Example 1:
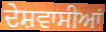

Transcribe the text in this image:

ਦੇਸ਼ਵਾਸੀਆਂ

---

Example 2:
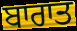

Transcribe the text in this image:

ਬਾਰਾਤ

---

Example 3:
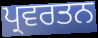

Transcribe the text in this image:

ਪ੍ਰਵਰਤਨ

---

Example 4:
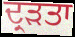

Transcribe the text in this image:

ਦ੍ਰੜਤਾ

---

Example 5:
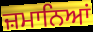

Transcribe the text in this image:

ਜ਼ਮਾਨਿਆਂ